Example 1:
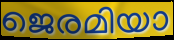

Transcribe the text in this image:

ജെരമിയാ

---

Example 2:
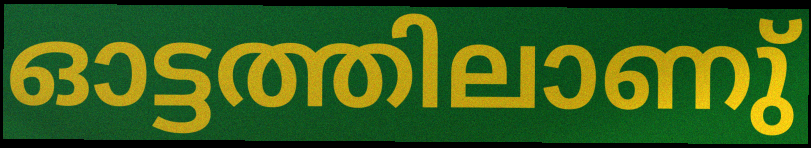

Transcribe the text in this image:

ഓട്ടത്തിലാണു്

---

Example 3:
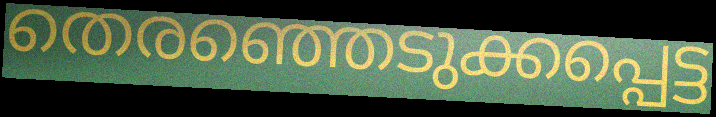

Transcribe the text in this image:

തെരഞ്ഞെടുക്കപ്പെട്ട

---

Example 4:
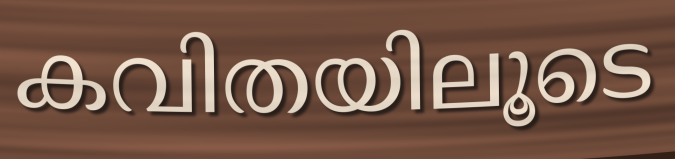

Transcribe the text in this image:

കവിതയിലൂടെ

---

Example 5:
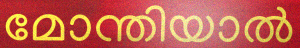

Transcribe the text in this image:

മോന്തിയാൽ